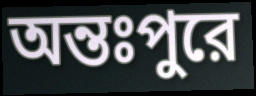
অন্তঃপুরে